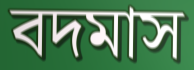
বদমাস